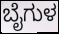
ಬೈಗುಳ